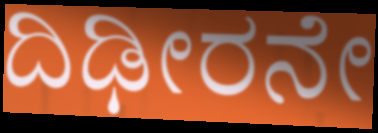
ದಿಢೀರನೇ